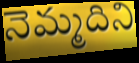
నెమ్మదిని